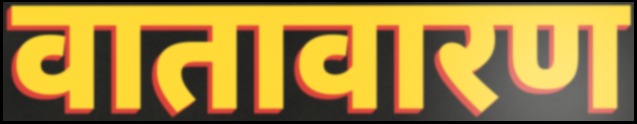
वातावारण